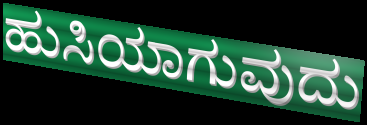
ಹುಸಿಯಾಗುವುದು